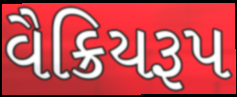
વૈક્રિયરૂપ